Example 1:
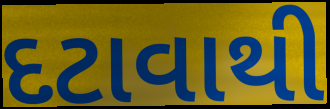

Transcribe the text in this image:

દટાવાથી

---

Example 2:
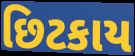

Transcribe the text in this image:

છિટકાય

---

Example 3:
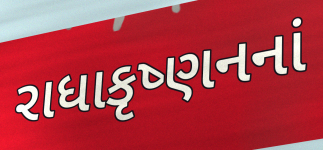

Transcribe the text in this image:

રાધાકૃષ્ણનનાં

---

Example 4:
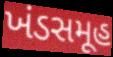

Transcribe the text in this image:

ખંડસમૂહ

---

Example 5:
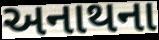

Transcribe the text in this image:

અનાથના